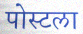
पोस्टला